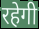
रहेगी